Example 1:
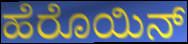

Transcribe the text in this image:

ಹೆರೊಯಿನ್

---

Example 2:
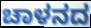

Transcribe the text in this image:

ಚಾಳನದ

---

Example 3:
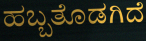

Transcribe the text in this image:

ಹಬ್ಬತೊಡಗಿದೆ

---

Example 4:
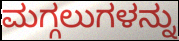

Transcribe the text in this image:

ಮಗ್ಗಲುಗಳನ್ನು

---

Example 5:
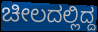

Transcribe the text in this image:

ಚೀಲದಲ್ಲಿದ್ದ